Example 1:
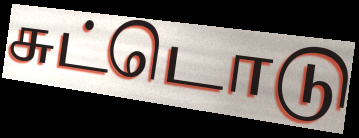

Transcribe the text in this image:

சுட்டொடு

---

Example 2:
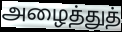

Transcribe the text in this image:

அழைத்துத்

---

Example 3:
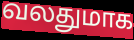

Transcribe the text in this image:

வலதுமாக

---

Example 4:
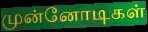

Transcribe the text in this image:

முன்னோடிகள்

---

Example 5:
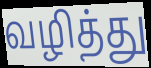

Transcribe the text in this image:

வழித்து